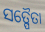
ସତ୍ପୈତା